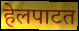
हेलपाटत